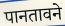
पानतावने